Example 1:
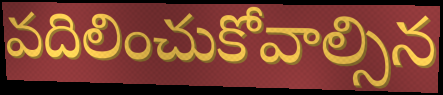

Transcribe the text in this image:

వదిలించుకోవాల్సిన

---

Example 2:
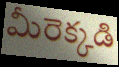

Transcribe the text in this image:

మీరెక్కడి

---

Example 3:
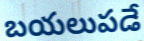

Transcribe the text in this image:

బయలుపడే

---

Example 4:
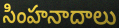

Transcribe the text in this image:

సింహనాదాలు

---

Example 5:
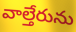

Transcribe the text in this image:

వాల్తేరును